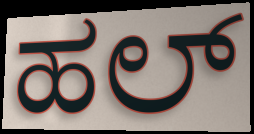
ಹಲ್